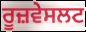
ਰੂਜ਼ਵੇਸਲਟ